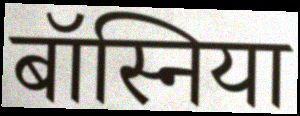
बॉस्निया